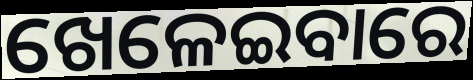
ଖେଳେଇବାରେ